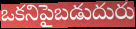
ఒకనిపైబడుదురు